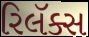
રિલૅક્સ